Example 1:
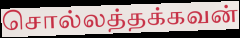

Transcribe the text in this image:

சொல்லத்தக்கவன்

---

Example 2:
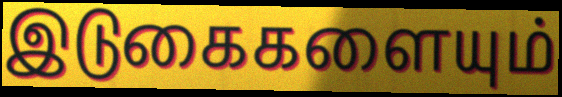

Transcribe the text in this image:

இடுகைகளையும்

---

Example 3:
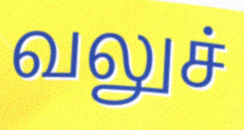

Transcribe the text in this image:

வலுச்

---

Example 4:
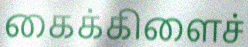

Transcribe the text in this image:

கைக்கிளைச்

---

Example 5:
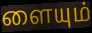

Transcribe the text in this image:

ளையும்